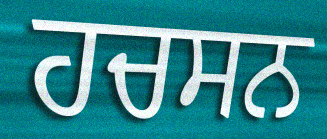
ਹਚਸਨ